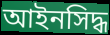
আইনসিদ্ধ